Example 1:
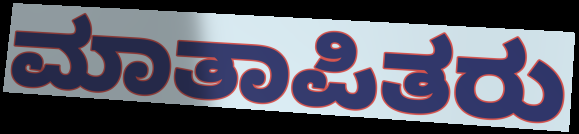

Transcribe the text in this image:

ಮಾತಾಪಿತರು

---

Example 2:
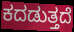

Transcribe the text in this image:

ಕದಡುತ್ತದೆ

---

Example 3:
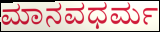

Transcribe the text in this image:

ಮಾನವಧರ್ಮ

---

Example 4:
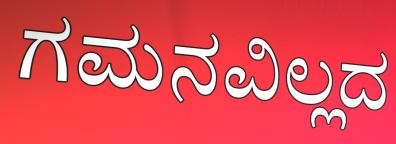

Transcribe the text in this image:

ಗಮನವಿಲ್ಲದ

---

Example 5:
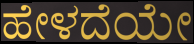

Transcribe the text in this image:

ಹೇಳದೆಯೇ